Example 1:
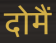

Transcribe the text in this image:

दोमैं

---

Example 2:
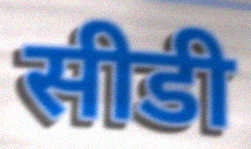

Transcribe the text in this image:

सीडी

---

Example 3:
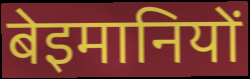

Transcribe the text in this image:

बेइमानियों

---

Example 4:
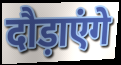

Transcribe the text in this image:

दौड़ाएंगे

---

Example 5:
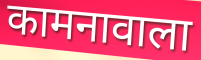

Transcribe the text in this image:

कामनावाला